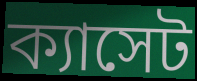
ক্যাসেট